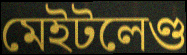
মেইটলেণ্ড